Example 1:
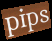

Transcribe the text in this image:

pips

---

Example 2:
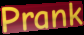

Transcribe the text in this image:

Prank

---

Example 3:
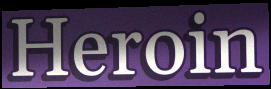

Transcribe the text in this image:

Heroin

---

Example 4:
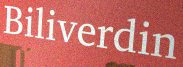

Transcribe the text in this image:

Biliverdin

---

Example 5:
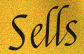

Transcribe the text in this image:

Sells